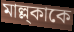
মাল্ল্কাকে